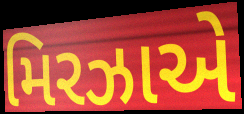
મિરઝાએ